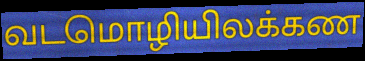
வடமொழியிலக்கண